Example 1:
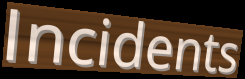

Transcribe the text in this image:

Incidents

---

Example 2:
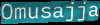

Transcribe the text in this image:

Omusajja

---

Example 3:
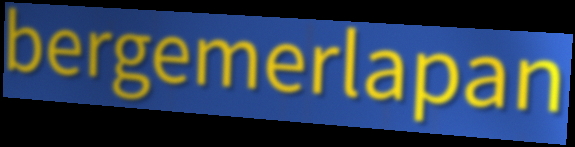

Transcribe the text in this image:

bergemerlapan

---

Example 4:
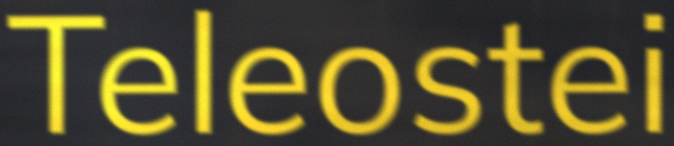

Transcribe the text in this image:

Teleostei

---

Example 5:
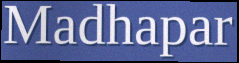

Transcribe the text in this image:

Madhapar